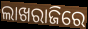
ଲାଖରାଜିରେ